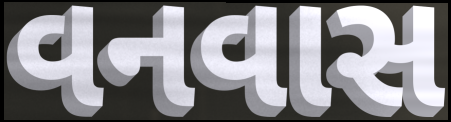
વનવાસ